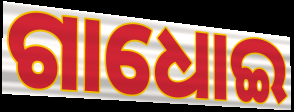
ଗାଧୋଇ